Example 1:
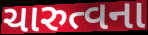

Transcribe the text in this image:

ચારુત્વના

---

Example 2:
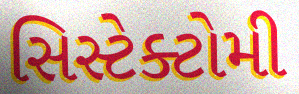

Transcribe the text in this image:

સિસ્ટેક્ટોમી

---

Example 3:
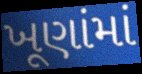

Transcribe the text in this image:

ખૂણાંમાં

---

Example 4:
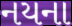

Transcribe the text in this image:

નયના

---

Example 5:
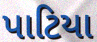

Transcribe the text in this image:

પાટિયા